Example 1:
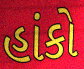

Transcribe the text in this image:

હાંકો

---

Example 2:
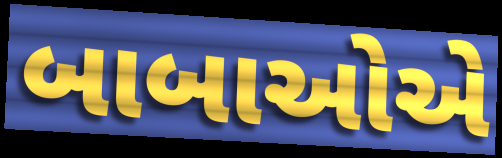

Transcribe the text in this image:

બાબાઓએ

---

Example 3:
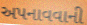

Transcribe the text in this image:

અપનાવવાની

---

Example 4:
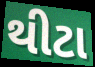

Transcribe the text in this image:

થીટા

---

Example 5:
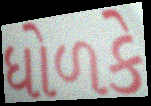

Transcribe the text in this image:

ધોળકે